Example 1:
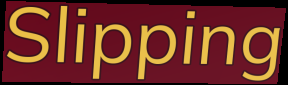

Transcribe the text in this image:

Slipping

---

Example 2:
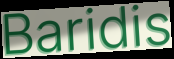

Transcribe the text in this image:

Baridis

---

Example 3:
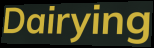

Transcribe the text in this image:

Dairying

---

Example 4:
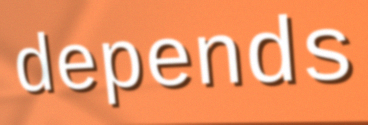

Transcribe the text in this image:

depends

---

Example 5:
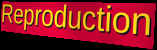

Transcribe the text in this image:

Reproduction